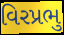
વિરપ્રભુ